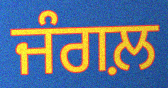
ਜੰਗਲ਼